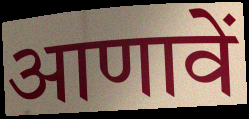
आणावें